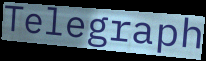
Telegraph